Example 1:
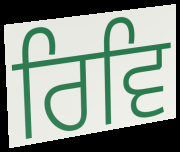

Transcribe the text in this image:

ਰਿਵਿ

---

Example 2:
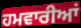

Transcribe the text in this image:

ਹਮਵਾਰੀਆਂ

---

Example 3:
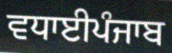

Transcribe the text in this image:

ਵਧਾਈਪੰਜਾਬ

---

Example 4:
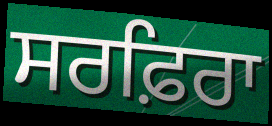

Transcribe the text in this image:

ਸਰਫ਼ਿਰਾ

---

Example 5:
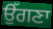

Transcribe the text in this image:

ਉੱਗਣਾ